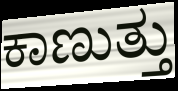
ಕಾಣುತ್ತು